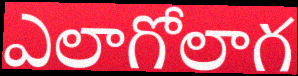
ఎలాగోలాగ